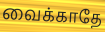
வைக்காதே